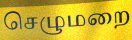
செழுமறை